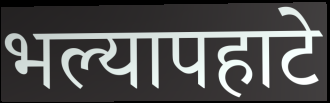
भल्यापहाटे